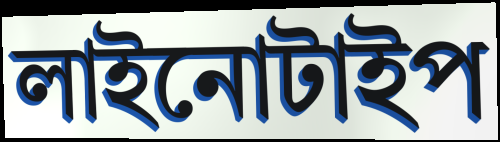
লাইনোটাইপ